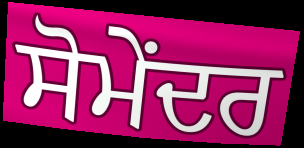
ਸੋਮੇਂਦਰ